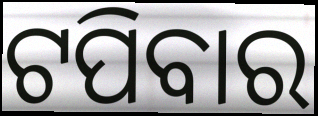
ଟପିବାର